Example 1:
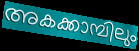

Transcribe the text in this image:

അകക്കാമ്പിലും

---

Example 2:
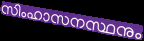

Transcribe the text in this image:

സിംഹാസനസ്ഥനും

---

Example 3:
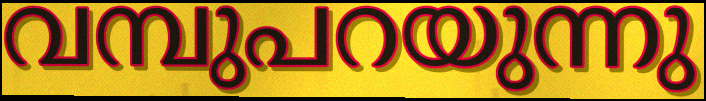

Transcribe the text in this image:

വമ്പുപറയുന്നു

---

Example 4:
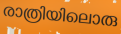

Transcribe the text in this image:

രാത്രിയിലൊരു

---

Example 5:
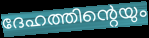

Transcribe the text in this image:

ദേഹത്തിന്റെയും